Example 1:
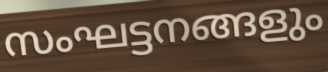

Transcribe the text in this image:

സംഘട്ടനങ്ങളും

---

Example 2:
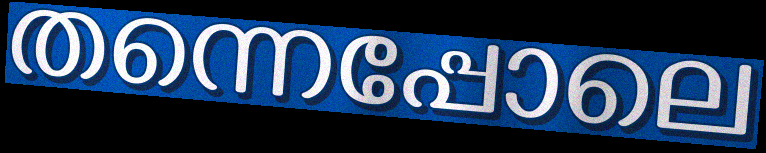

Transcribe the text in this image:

തന്നെപ്പോലെ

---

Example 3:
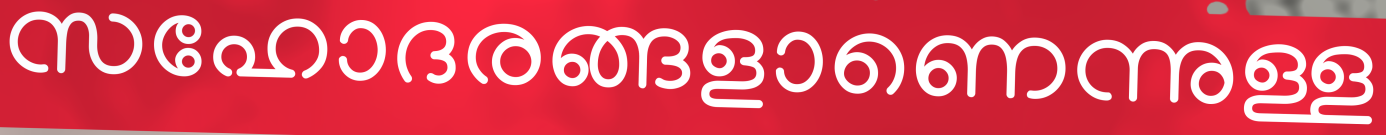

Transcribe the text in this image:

സഹോദരങ്ങളാണെന്നുള്ള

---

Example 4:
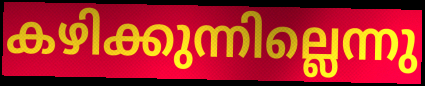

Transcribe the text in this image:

കഴിക്കുന്നില്ലെന്നു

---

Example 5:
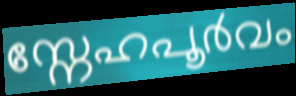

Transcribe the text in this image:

സ്നേഹപൂർവം